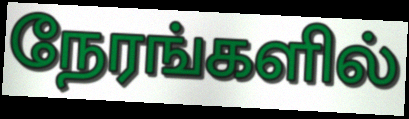
நேரங்களில்